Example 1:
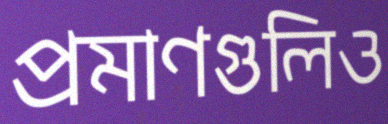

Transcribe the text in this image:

প্রমাণগুলিও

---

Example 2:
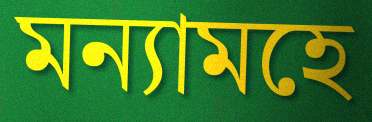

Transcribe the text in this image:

মন্যামহে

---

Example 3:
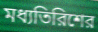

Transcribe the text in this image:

মধ্যতিরিশের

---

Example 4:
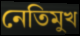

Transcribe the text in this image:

নেতিমুখ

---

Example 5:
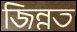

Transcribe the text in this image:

জিন্নত